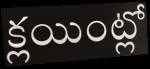
క్లయింట్లో